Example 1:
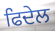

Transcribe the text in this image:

ਫਿਦੇਲ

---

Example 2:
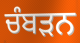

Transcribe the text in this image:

ਚੰਬੜਨ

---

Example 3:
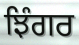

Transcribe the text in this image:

ਝਿੰਗਰ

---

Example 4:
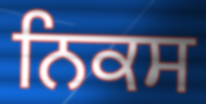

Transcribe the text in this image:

ਨਿਕਸ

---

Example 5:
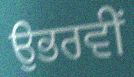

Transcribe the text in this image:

ਉਭਰਵੀਂ